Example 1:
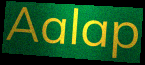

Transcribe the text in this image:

Aalap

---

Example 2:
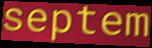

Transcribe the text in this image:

septem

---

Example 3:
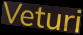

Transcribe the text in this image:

Veturi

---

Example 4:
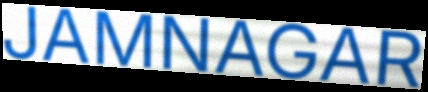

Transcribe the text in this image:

JAMNAGAR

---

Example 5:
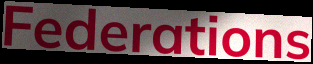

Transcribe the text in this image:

Federations